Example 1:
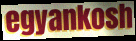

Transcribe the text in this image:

egyankosh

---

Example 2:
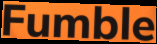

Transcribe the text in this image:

Fumble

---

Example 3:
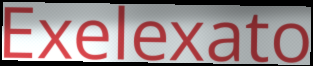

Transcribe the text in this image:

Exelexato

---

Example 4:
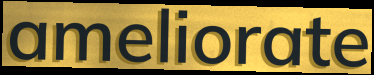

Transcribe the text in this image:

ameliorate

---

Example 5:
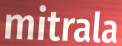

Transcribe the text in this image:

mitrala